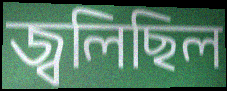
জ্বলিছিল